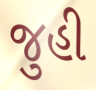
જુહી